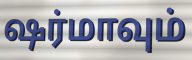
ஷர்மாவும்